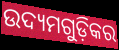
ଉଦ୍ୟମଗୁଡ଼ିକର